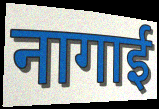
नागाई